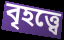
বৃহত্ত্বে